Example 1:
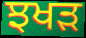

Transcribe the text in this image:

ਝਖੜ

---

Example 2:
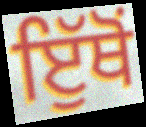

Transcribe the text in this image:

ਇੁੱਥੋਂ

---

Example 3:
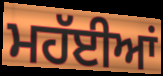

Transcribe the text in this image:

ਮਹੱਈਆਂ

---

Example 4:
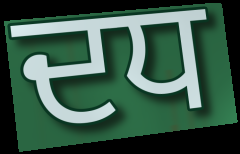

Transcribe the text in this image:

ਦਧ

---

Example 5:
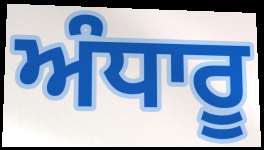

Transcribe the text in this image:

ਅੰਧਾਰੂ